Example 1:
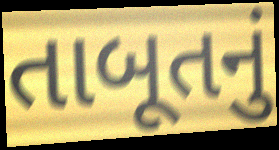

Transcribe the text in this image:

તાબૂતનું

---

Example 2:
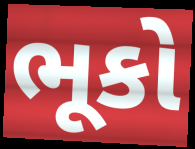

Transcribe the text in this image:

ભૂકો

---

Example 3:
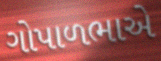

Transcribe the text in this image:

ગોપાળભાએ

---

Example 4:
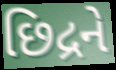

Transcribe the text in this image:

છિદ્રને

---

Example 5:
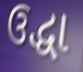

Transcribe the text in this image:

ઉદ્ધા